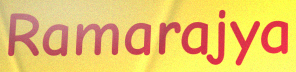
Ramarajya